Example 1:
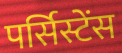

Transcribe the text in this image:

पर्सिस्टेंस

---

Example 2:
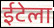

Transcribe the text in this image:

ईटेला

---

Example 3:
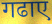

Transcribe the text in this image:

गढाए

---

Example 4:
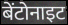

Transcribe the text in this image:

बेंटोनाइट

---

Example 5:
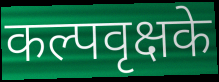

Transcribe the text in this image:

कल्पवृक्षके